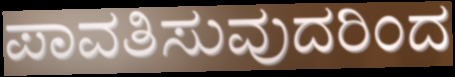
ಪಾವತಿಸುವುದರಿಂದ